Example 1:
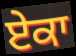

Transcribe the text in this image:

ਏਕਾ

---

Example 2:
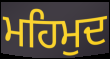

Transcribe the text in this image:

ਮਹਿਮੁਦ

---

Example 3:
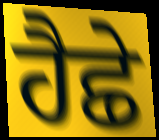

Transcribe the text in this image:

ਹੈਛੇ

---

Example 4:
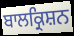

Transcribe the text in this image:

ਬਾਲਕ੍ਰਿਸ਼ਨ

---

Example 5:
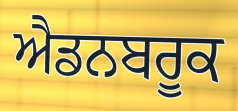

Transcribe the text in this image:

ਐਡਨਬਰੂਕ